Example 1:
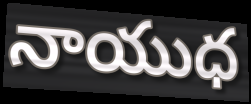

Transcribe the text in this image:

నాయుధ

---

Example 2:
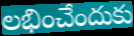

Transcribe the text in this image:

లభించేందుకు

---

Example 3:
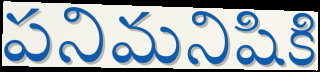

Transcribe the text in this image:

పనిమనిషికి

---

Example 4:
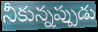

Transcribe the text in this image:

నీకున్నప్పుడు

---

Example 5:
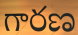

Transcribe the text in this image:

గారణ